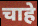
चाहे